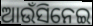
ଆଉଁସିନେଇ